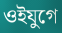
ওইযুগে